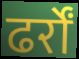
ढर्रों